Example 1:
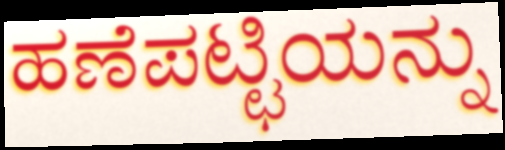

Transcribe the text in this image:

ಹಣೆಪಟ್ಟಿಯನ್ನು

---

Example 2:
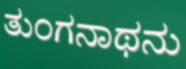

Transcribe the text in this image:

ತುಂಗನಾಥನು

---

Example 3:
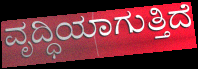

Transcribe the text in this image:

ವೃದ್ಧಿಯಾಗುತ್ತಿದೆ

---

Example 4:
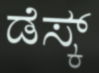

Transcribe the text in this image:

ಡೆಸ್ಕ್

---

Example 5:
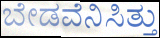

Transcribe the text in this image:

ಬೇಡವೆನಿಸಿತ್ತು